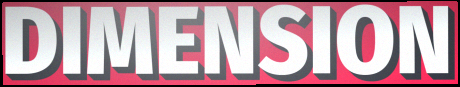
DIMENSION